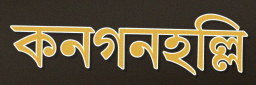
কনগনহল্লি